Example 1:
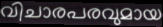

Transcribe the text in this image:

വിചാരപരവുമായ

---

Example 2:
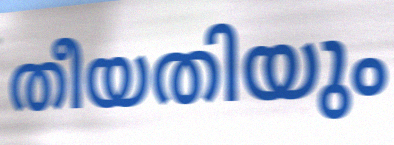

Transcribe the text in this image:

തീയതിയും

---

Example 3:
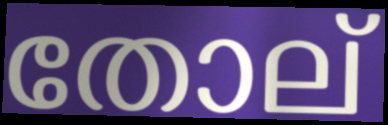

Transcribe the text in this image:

തോല്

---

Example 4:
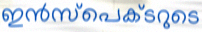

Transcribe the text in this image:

ഇൻസ്പെക്ടറുടെ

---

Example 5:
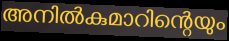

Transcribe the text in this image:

അനിൽകുമാറിന്റെയും